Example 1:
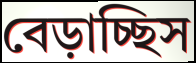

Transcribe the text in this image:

বেড়াচ্ছিস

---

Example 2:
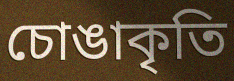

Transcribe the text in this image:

চোঙাকৃতি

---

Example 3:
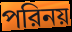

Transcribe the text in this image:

পরিনয়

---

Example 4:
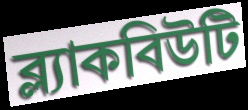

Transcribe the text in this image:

ব্ল্যাকবিউটি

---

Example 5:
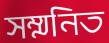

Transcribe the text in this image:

সম্মনিত